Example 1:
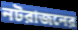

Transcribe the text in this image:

নটরাজনের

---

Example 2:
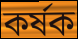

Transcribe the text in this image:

কর্ষক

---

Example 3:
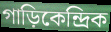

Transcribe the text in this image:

গাড়িকেন্দ্রিক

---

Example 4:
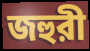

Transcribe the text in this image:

জহুরী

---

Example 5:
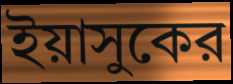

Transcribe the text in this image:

ইয়াসুকের